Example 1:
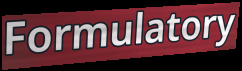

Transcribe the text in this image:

Formulatory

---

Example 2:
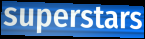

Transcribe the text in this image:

superstars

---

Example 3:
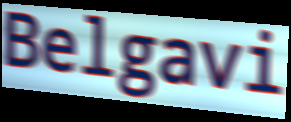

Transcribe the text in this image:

Belgavi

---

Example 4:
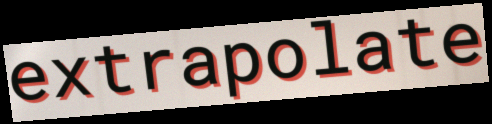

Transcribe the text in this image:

extrapolate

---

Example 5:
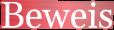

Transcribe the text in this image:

Beweis